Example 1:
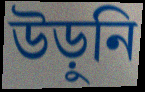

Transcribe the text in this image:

উড়ুনি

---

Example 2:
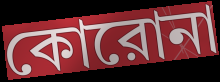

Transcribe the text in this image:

কোরোনা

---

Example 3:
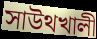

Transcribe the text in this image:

সাউথখালী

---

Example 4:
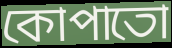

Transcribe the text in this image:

কোপাতো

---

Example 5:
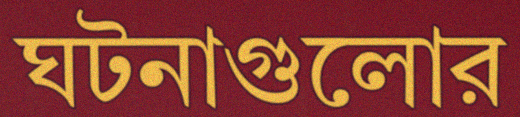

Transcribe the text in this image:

ঘটনাগুলোর